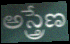
అస్త్రేణ